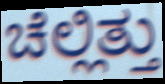
ಚೆಲ್ಲಿತ್ತು